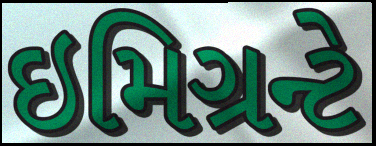
ઇમિગ્રન્ટે